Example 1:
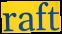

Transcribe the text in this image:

raft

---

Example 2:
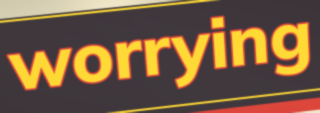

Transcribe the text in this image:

worrying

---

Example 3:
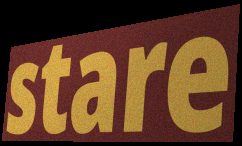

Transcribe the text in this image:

stare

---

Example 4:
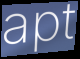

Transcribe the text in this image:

apt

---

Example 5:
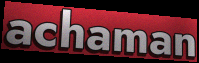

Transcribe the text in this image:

achaman